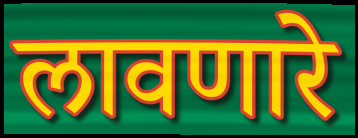
लावणारे